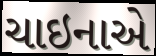
ચાઇનાએ